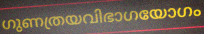
ഗുണത്രയവിഭാഗയോഗം